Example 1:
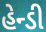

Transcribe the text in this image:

હેન્ડી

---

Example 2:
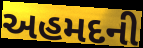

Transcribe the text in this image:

અહમદની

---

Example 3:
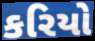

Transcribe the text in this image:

કરિયો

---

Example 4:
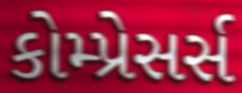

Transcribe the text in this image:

કોમ્પ્રેસર્સ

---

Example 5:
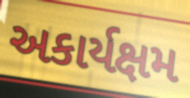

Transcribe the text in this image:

અકાર્યક્ષમ